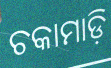
ଚକାମାଡ଼ି